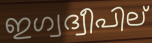
ഇഗ്വദ്വീപില്